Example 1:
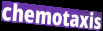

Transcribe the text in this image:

chemotaxis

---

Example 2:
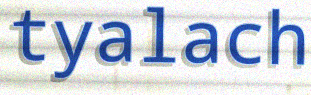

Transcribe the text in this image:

tyalach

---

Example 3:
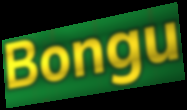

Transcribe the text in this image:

Bongu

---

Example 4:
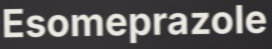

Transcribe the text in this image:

Esomeprazole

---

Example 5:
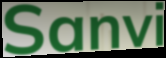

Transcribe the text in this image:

Sanvi